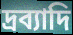
দ্রব্যাদি